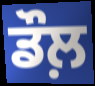
ਡੌਲ਼